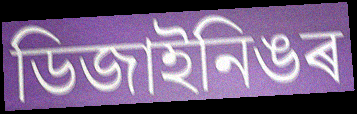
ডিজাইনিঙৰ